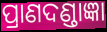
ପ୍ରାଣଦଣ୍ଡାଜ୍ଞା